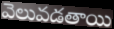
వెలువడతాయి